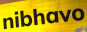
nibhavo